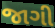
જાગી